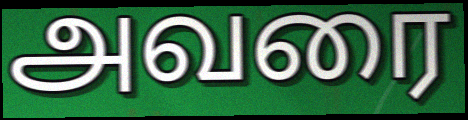
அவரை